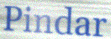
Pindar